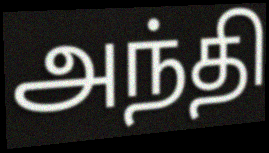
அந்தி